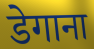
डेगाना